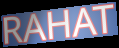
RAHAT